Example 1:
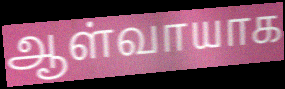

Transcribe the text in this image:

ஆள்வாயாக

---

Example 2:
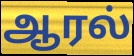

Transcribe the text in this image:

ஆரல்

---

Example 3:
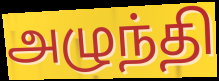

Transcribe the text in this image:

அழுந்தி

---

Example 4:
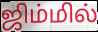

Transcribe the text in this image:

ஜிம்மில்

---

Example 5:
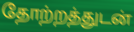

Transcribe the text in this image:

தோற்றத்துடன்